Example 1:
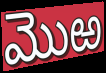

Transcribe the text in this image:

మొఱ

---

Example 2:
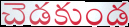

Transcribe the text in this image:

చెడకుండ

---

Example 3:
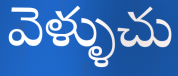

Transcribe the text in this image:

వెళ్ళుచు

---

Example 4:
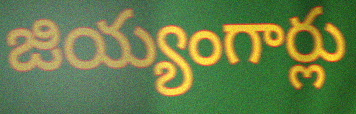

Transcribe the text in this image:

జియ్యంగార్లు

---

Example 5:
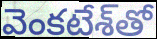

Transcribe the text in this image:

వెంకటేశ్‌తో